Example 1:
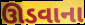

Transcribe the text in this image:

ઊડવાના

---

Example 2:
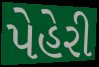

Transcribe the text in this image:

પેહેરી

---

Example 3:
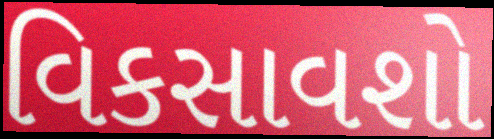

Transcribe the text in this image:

વિકસાવશો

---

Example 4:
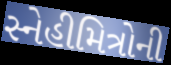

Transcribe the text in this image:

સ્નેહીમિત્રોની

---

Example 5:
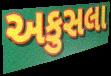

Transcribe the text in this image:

અકુસલા